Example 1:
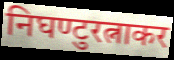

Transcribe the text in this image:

निघण्टुरत्नाकर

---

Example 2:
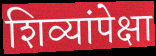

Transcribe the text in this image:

शिव्यांपेक्षा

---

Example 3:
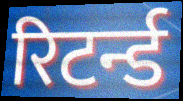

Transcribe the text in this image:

रिटर्न्ड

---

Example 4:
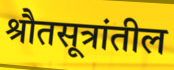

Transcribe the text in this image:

श्रौतसूत्रांतील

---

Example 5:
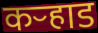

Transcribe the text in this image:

कऱ्हाड